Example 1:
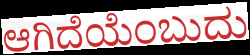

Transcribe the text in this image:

ಆಗಿದೆಯೆಂಬುದು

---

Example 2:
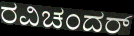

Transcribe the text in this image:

ರವಿಚಂದರ್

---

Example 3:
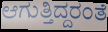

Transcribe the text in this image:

ಆಗುತ್ತಿದ್ದರಂತೆ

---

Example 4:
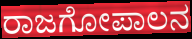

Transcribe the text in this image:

ರಾಜಗೋಪಾಲನ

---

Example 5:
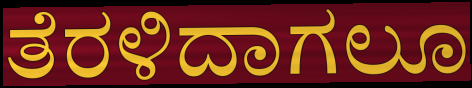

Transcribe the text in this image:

ತೆರಳಿದಾಗಲೂ